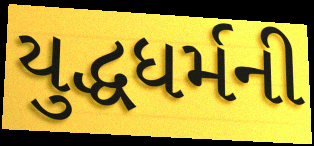
યુદ્ધધર્મની